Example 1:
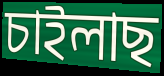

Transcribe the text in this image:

চাইলাছ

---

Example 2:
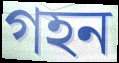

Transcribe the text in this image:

গহন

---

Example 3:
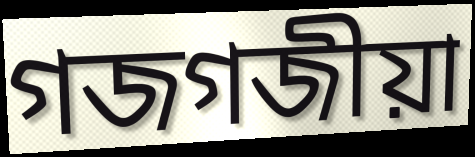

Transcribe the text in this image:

গজগজীয়া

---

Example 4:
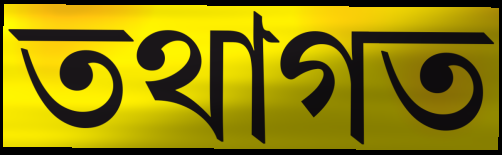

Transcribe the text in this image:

তথাগত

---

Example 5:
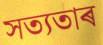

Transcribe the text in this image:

সত্যতাৰ